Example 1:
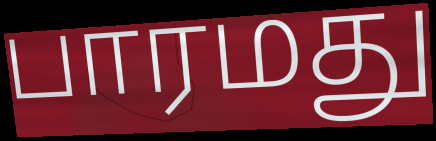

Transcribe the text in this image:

பாரமது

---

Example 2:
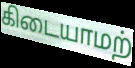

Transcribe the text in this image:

கிடையாமற்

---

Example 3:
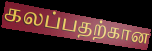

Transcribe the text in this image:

கலப்பதற்கான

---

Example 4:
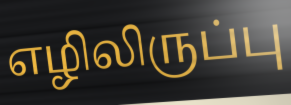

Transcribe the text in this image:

எழிலிருப்பு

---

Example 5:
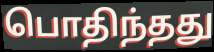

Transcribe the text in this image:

பொதிந்தது